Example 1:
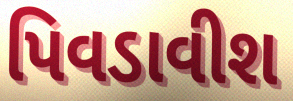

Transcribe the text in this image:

પિવડાવીશ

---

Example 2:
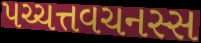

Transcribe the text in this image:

પચ્ચત્તવચનસ્સ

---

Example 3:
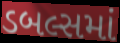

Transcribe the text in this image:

ડબલ્સમાં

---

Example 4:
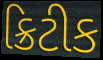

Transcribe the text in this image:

ક્રિટીક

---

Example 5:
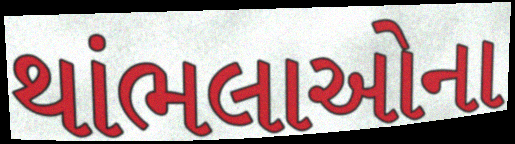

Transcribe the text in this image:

થાંભલાઓના